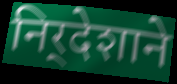
निर्देशाने